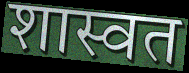
शास्वत